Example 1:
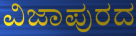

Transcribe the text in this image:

ವಿಜಾಪುರದ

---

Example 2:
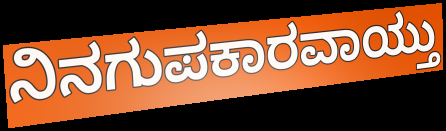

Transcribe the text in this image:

ನಿನಗುಪಕಾರವಾಯ್ತು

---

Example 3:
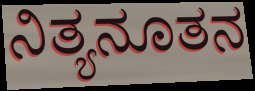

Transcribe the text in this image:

ನಿತ್ಯನೂತನ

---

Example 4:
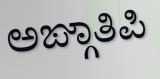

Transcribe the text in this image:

ಅಙ್ಗಾತಿಪಿ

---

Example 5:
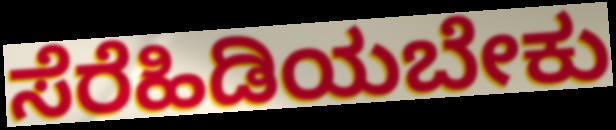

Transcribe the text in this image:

ಸೆರೆಹಿಡಿಯಬೇಕು